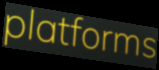
platforms